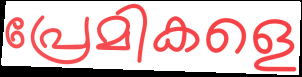
പ്രേമികളെ